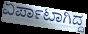
ಏರ್ಪಾಟಾಗಿದ್ದ